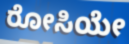
ರೋಸಿಯೇ